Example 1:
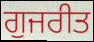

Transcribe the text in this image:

ਗੁਜਰੀਤ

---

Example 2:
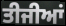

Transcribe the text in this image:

ਤੀਜੀਆਂ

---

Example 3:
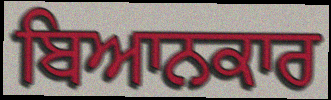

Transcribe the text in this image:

ਬਿਆਨਕਾਰ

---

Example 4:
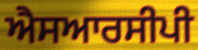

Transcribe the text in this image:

ਐਸਆਰਸੀਪੀ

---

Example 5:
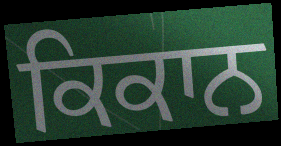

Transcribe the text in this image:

ਕਿਕਾਨ